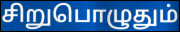
சிறுபொழுதும்